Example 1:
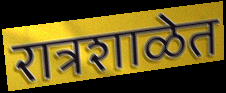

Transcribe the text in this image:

रात्रशाळेत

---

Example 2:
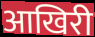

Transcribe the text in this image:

आखिरी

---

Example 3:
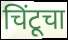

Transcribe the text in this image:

चिंटूचा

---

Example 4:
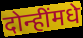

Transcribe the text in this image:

दोन्हींमधे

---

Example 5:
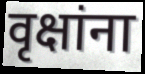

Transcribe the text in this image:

वृक्षांना